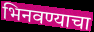
भिनवण्याचा